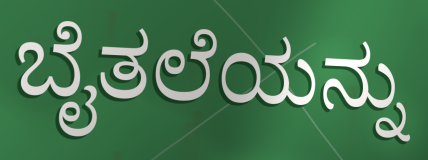
ಬೈತಲೆಯನ್ನು